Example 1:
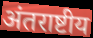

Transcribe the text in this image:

अंतराष्टीय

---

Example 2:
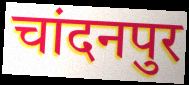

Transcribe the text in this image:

चांदनपुर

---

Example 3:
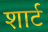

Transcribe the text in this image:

शार्ट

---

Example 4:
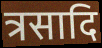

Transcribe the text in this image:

त्रसादि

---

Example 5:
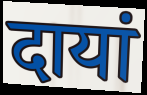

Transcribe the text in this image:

दायां